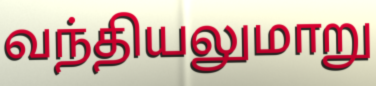
வந்தியலுமாறு